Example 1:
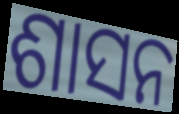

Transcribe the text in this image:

ଶାସନ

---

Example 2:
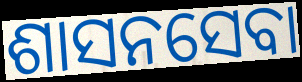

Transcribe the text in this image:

ଶାସନସେବା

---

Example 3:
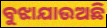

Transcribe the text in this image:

ବୁଝାଯାଉଅଛି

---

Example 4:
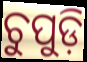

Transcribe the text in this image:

ଚୁପୁଡ଼ି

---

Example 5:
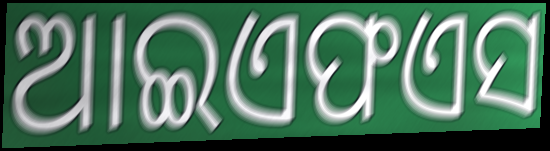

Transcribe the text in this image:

ଆଇଏଫଏସ